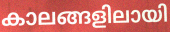
കാലങ്ങളിലായി